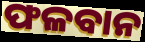
ଫଳବାନ